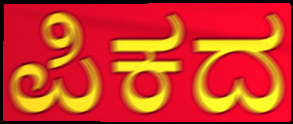
ಪಿಕದ